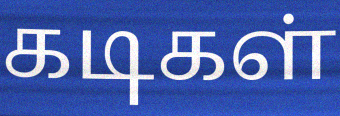
கடிகள்